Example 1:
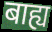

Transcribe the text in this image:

बाह्य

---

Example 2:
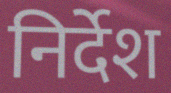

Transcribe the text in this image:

निर्देश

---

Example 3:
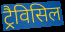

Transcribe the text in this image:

ट्रैविसिल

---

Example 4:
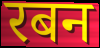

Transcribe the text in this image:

रबन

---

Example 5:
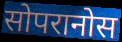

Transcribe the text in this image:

सोपरानोस